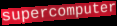
supercomputer